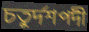
চতুর্দশপদী